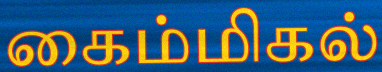
கைம்மிகல்